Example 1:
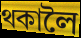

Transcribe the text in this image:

থকালৈ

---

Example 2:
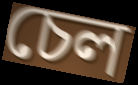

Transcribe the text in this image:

চেল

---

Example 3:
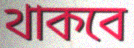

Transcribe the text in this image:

থাকবে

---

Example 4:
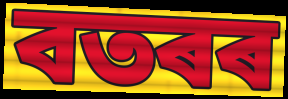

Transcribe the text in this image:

বতৰৰ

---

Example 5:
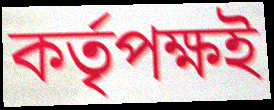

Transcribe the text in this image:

কৰ্তৃপক্ষই